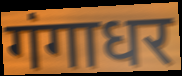
गंगाधर